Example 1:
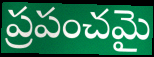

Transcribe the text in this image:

ప్రపంచమై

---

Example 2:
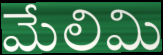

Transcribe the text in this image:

మేలిమి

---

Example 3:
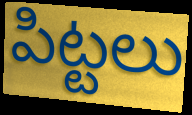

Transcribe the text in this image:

పిట్టలు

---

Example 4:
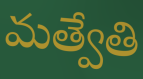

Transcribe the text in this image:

మత్వేతి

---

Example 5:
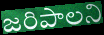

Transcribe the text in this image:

జరిపాలని